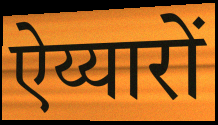
ऐय्यारों